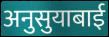
अनुसुयाबाई